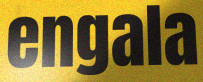
engala